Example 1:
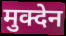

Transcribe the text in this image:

मुक्देन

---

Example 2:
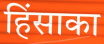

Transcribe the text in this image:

हिंसाका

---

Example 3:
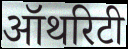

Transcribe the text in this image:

ऑथरिटी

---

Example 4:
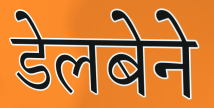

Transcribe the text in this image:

डेलबेने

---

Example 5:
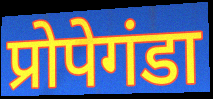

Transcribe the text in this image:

प्रोपेगंडा